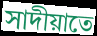
সাদীয়াতে